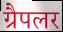
ग्रैपलर